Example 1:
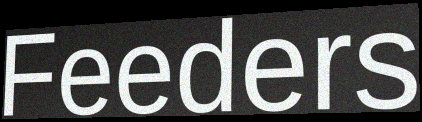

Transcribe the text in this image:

Feeders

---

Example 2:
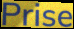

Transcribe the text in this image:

Prise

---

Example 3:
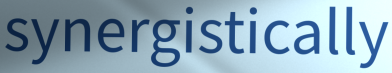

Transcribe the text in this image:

synergistically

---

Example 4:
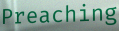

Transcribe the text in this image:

Preaching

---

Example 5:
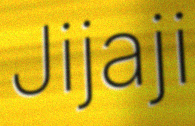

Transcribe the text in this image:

Jijaji